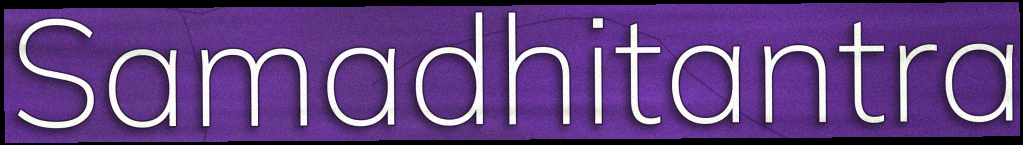
Samadhitantra